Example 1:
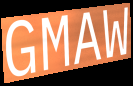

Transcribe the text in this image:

GMAW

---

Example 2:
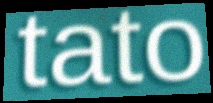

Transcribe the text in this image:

tato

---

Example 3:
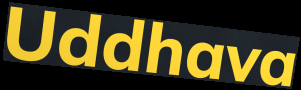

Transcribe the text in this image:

Uddhava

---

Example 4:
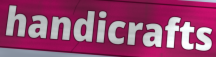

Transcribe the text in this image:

handicrafts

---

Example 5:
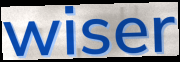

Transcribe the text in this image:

wiser